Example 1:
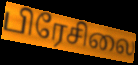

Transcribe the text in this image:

பிரேசிலை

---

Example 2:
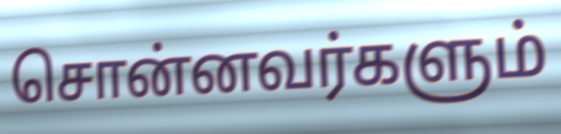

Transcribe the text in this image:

சொன்னவர்களும்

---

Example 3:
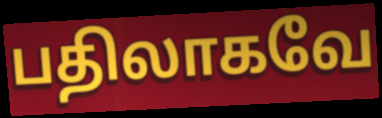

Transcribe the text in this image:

பதிலாகவே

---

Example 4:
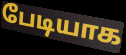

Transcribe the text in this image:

பேடியாக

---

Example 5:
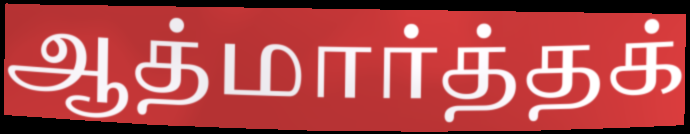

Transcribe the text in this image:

ஆத்மார்த்தக்